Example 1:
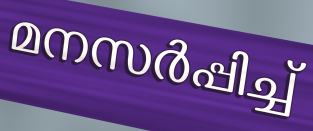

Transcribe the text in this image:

മനസർപ്പിച്ച്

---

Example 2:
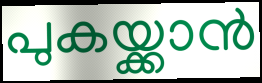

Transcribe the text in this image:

പുകയ്ക്കാൻ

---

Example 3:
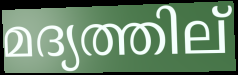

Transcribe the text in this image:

മദ്യത്തില്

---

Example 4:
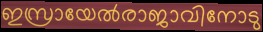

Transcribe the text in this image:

ഇസ്രായേൽരാജാവിനോടു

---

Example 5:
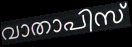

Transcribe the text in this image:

വാതാപിസ്